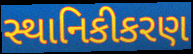
સ્થાનિકીકરણ